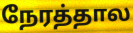
நேரத்தால